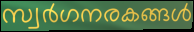
സ്വർഗനരകങ്ങൾ